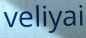
veliyai